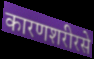
कारणशरीरसे